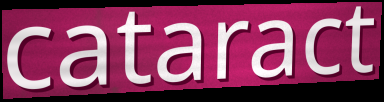
cataract